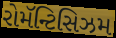
રોમૅન્ટિસિઝમ